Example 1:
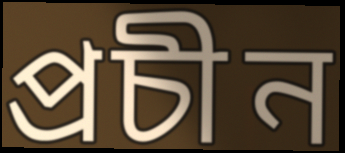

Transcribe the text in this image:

প্ৰচীন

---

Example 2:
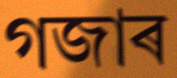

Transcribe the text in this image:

গজাৰ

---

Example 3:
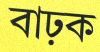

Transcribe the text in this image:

বাঢ়ক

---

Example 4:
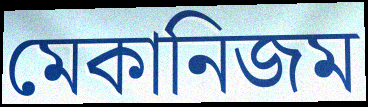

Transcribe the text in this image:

মেকানিজম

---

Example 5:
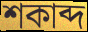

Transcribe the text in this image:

শকাব্দ